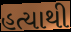
હત્યાથી